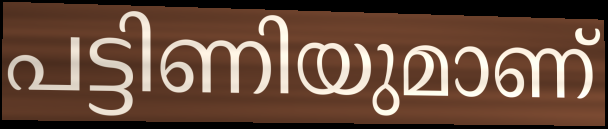
പട്ടിണിയുമാണ്